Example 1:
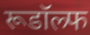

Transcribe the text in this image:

रूडॉल्फ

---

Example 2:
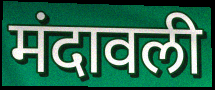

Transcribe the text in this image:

मंदावली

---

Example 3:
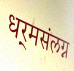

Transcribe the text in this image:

धर्मसंलग्न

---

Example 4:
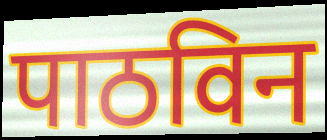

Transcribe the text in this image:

पाठविन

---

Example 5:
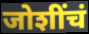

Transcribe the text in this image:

जोशींचं